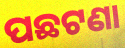
ପଛଟଣା